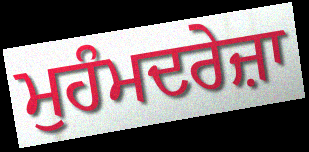
ਮੁਹੰਮਦਰੇਜ਼ਾ